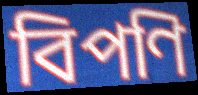
বিপণি